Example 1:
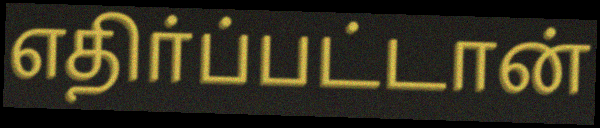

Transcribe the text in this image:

எதிர்ப்பட்டான்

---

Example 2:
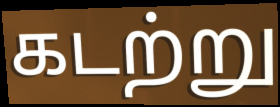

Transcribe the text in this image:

கடற்று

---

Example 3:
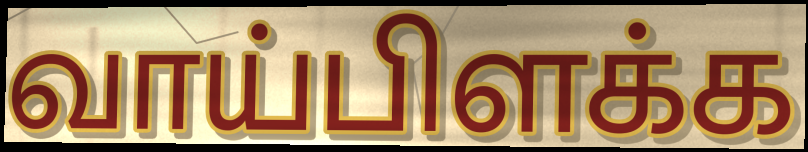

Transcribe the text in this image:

வாய்பிளக்க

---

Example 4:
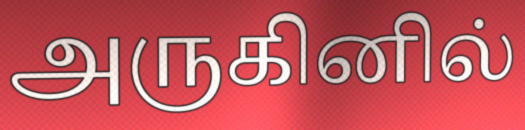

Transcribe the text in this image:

அருகினில்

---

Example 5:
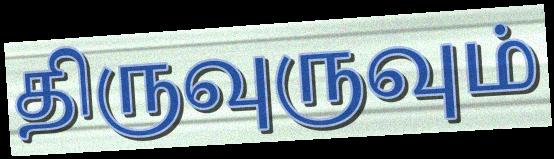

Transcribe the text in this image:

திருவுருவும்